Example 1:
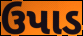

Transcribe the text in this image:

ઉપાડ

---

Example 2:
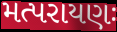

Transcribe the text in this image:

મત્પરાયણઃ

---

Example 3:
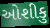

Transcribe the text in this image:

ઓશીકુ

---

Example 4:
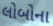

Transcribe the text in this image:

લોબોના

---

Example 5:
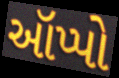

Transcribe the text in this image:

ઑપ્પો